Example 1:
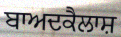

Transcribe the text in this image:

ਬਾਅਦਕੈਲਾਸ਼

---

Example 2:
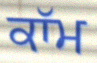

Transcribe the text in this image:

ਕਾੱਮ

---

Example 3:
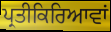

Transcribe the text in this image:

ਪ੍ਰਤੀਕਿਰਿਆਵਾਂ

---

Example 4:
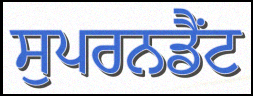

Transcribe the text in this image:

ਸੁਪਰਨਡੈਂਟ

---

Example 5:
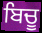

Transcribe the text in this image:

ਬਿਚੂ